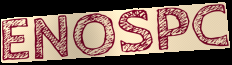
ENOSPC